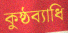
কুষ্ঠব্যাধি